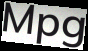
Mpg